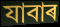
যাবাৰ